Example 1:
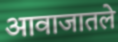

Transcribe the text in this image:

आवाजातले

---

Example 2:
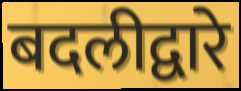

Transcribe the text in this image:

बदलीद्वारे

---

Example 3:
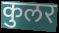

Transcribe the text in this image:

कुलर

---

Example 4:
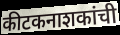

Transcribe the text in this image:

कीटकनाशकांची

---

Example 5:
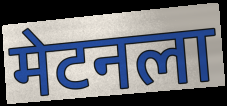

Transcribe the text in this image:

मेटनला